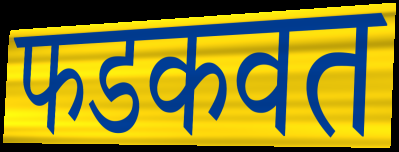
फडकवत